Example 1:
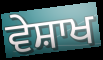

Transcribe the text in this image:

ਵੇਸ਼ਾਖ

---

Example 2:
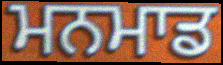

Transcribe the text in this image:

ਮਨਮਾਡ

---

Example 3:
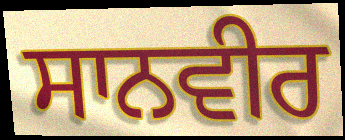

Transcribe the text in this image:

ਸਾਨਵੀਰ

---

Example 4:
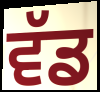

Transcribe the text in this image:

ਵੱਡ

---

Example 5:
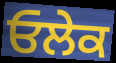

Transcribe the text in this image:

ਓਲੇਕ